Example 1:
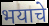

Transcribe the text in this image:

भयाचे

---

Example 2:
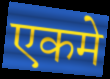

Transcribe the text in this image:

एकमे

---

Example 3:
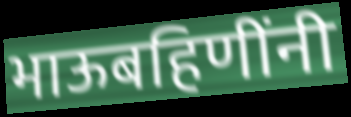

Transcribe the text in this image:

भाऊबहिणींनी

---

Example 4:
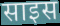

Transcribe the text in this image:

साइस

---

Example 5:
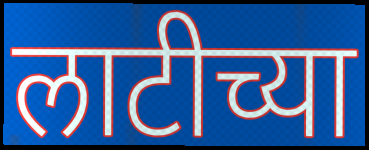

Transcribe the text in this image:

लाटीच्या